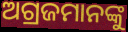
ଅଗ୍ରଜମାନଙ୍କୁ